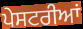
ਪੇਸਟਰੀਆਂ